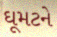
ઘૂમટને